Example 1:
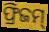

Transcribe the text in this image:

ଫ୍ରିଜମ୍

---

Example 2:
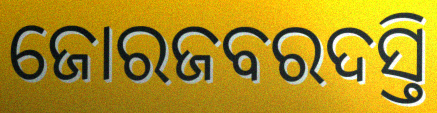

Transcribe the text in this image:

ଜୋରଜବରଦସ୍ତି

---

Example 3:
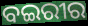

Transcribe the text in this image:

ବଇରୀର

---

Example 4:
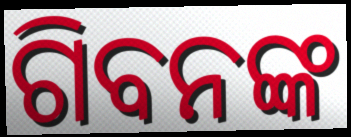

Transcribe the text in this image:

ଗିବନଙ୍କ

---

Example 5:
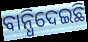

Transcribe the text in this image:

ବାନ୍ଧିଦେଇଛି